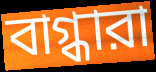
বাগ্ধারা